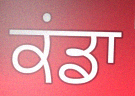
ਕਂਡਾ